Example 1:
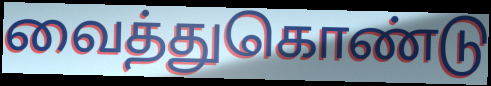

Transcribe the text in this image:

வைத்துகொண்டு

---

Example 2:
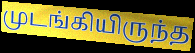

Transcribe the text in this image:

முடங்கியிருந்த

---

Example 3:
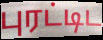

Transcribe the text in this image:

புரட்டிட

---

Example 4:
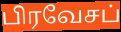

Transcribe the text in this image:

பிரவேசப்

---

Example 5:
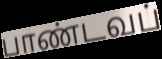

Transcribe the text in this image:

பாண்டவப்